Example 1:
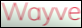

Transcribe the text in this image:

Wayve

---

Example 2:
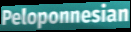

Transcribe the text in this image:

Peloponnesian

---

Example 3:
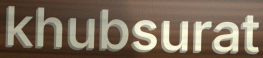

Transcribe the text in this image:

khubsurat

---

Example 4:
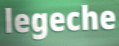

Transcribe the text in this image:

legeche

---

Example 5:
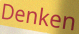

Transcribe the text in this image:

Denken